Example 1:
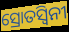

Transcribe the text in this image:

ସ୍ରୋତସ୍ୱିନୀ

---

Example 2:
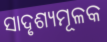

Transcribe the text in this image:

ସାଦୃଶ୍ୟମୂଳକ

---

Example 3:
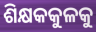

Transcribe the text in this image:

ଶିକ୍ଷକକୁଳକୁ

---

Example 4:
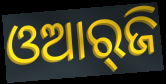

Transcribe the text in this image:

ଓଆର୍‌ଜି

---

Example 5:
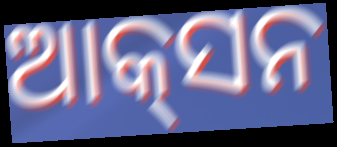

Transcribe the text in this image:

ଆକ୍‌ସନ